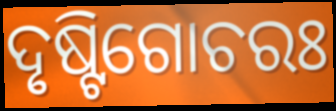
ଦୃଷ୍ଟିଗୋଚରଃ